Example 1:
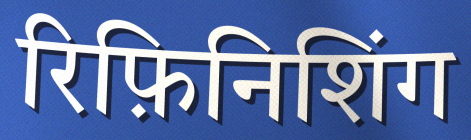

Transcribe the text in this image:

रिफ़िनिशिंग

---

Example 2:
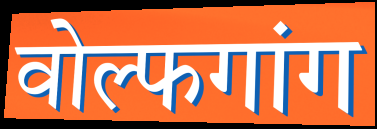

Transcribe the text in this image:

वोल्फगांग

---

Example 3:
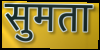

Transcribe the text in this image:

सुमता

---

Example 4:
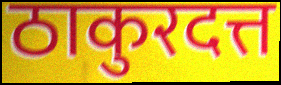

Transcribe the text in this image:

ठाकुरदत्त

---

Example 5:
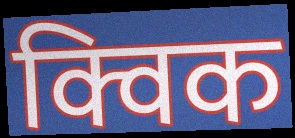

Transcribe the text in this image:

क्विक